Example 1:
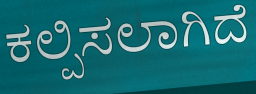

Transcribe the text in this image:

ಕಲ್ಪಿಸಲಾಗಿದೆ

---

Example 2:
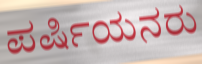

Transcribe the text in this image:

ಪರ್ಷಿಯನರು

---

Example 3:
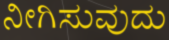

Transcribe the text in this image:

ನೀಗಿಸುವುದು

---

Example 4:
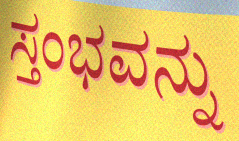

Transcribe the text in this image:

ಸ್ತಂಭವನ್ನು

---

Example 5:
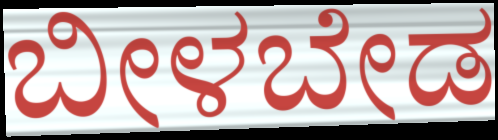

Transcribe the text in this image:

ಬೀಳಬೇಡ